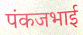
पंकजभाई